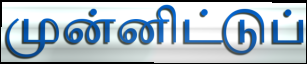
முன்னிட்டுப்